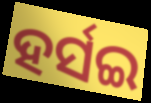
ହର୍ସଇ